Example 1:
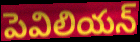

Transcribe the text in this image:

పెవిలియన్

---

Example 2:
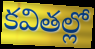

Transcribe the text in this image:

కవితల్లో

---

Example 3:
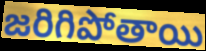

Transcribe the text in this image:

జరిగిపోతాయి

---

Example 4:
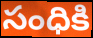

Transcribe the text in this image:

సంధికి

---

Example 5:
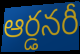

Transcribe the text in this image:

ఆర్డనరీ